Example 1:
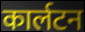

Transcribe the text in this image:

कार्लटन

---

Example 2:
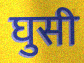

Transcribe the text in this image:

घुसी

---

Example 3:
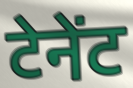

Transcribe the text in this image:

टेनेंट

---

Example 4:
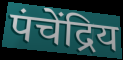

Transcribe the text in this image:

पंचेंद्रिय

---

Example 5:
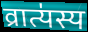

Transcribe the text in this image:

व्रात्य॑स्य